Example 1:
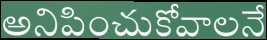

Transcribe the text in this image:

అనిపించుకోవాలనే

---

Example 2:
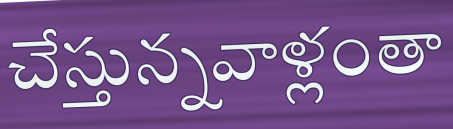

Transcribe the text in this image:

చేస్తున్నవాళ్లంతా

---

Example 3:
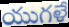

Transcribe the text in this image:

యుగళే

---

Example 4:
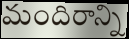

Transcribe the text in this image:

మందిరాన్ని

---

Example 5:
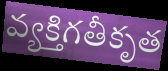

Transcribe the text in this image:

వ్యక్తిగతీకృత